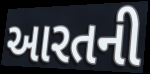
આરતની